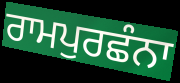
ਰਾਮਪੁਰਛੰਨਾ